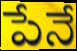
పేనే